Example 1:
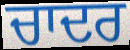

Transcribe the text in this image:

ਚਾਦਰ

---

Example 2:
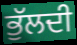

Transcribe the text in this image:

ਭੁੱਲਦੀ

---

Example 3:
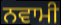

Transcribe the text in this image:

ਨਵਾਮੀ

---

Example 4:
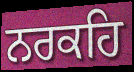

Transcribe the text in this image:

ਨਰਕਹਿ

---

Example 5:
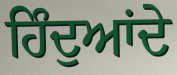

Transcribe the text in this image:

ਹਿੰਦੁਆਂਦੇ